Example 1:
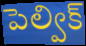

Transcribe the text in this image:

పెల్విక్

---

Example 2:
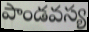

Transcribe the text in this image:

పాండవస్య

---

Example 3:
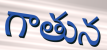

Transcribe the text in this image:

గాతున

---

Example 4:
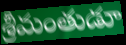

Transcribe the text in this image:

శ్రీమంతుడూ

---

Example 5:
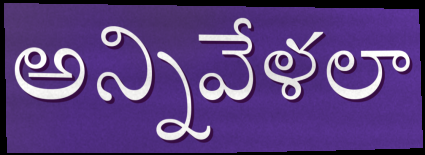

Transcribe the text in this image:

అన్నివేళలా